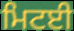
ਮਿਟਈ